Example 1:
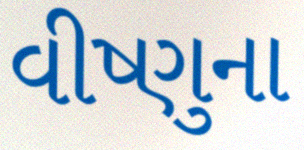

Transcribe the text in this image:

વીષ્ણુના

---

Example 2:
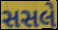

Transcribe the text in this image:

સસલે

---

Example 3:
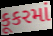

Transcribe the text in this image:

કૂકરમાં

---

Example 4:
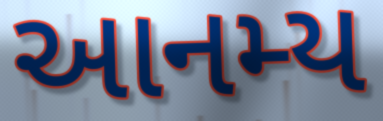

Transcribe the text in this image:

આનમ્ય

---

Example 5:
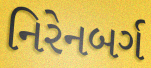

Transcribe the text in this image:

નિરેનબર્ગ